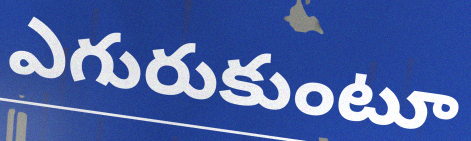
ఎగురుకుంటూ